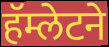
हॅम्लेटने